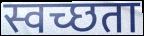
स्वच्छता